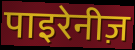
पाइरेनीज़